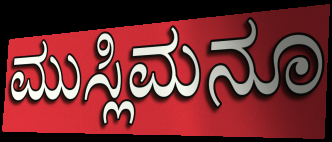
ಮುಸ್ಲಿಮನೂ